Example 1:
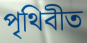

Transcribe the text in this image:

পৃথিবীত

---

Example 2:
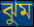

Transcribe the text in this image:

ঝুম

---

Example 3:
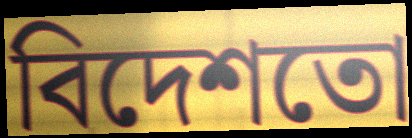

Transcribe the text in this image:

বিদেশতো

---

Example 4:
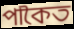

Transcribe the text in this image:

পাকৈত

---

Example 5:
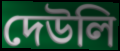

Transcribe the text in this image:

দেউলি